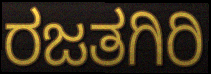
ರಜತಗಿರಿ